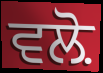
ਵਲ਼ੋ